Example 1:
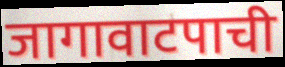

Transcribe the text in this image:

जागावाटपाची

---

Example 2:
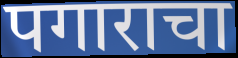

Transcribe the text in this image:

पगाराचा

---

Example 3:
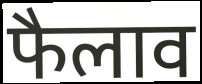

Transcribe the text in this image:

फैलाव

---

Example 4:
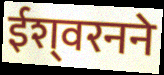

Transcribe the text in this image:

ईश्वरनने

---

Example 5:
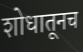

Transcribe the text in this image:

शोधातूनच